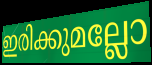
ഇരിക്കുമല്ലോ